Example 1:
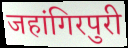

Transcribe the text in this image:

जहांगिरपुरी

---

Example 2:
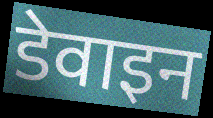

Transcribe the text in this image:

डेवाइन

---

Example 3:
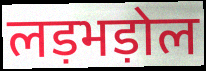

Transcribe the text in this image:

लड़भड़ोल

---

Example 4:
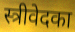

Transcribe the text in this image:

स्त्रीवेदका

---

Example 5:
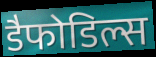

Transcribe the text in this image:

डैफोडिल्स